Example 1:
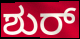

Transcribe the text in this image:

ಶುರ್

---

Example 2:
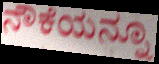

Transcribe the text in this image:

ನೌಕೆಯನ್ನೂ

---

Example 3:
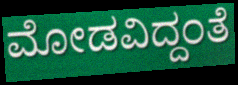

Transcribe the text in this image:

ಮೋಡವಿದ್ದಂತೆ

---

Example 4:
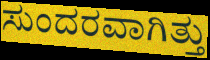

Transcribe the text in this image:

ಸುಂದರವಾಗಿತ್ತು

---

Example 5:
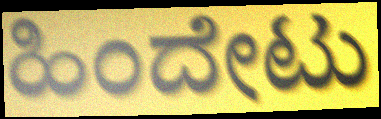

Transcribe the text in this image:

ಹಿಂದೇಟು